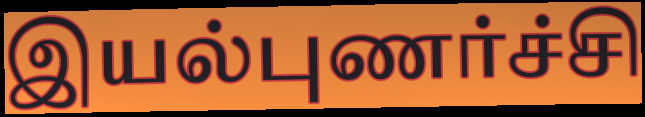
இயல்புணர்ச்சி